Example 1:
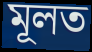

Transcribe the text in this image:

মূলত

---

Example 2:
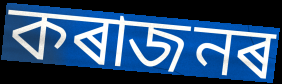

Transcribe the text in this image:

কৰাজনৰ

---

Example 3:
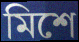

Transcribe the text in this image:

মিশে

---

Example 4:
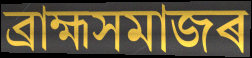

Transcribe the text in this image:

ব্ৰাহ্মসমাজৰ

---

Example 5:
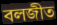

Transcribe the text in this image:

বলজীত